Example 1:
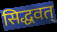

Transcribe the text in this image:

सिद्धवत्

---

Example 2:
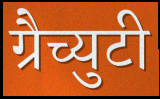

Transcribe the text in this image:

ग्रैच्युटी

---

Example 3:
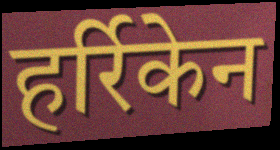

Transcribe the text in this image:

हर्रिकेन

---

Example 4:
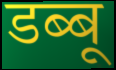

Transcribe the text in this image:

डब्बू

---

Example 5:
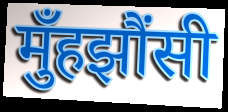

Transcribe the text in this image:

मुँहझौंसी